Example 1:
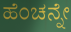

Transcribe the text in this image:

ಹೆಂಚನ್ನೇ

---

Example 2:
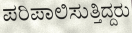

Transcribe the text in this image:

ಪರಿಪಾಲಿಸುತ್ತಿದ್ದರು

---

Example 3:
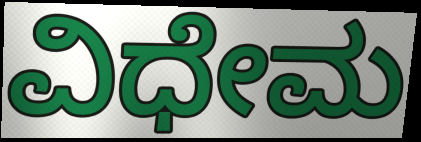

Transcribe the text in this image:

ವಿಧೇಮ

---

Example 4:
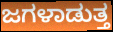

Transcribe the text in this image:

ಜಗಳಾಡುತ್ತ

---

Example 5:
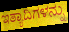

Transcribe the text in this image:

ಇತ್ಯಾದಿಗಳನ್ನು